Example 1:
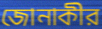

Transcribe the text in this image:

জোনাকীর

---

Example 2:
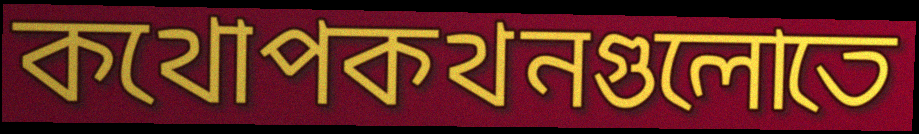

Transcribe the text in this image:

কথোপকথনগুলোতে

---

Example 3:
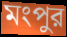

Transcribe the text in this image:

মংপুর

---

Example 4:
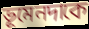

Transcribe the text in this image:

ভূমেনদাকে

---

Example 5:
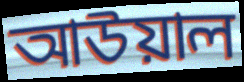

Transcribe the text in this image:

আউয়াল